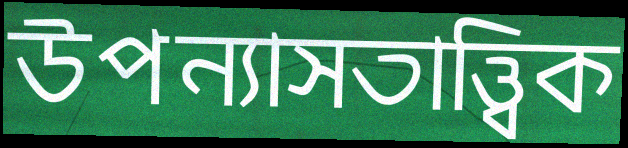
উপন্যাসতাত্ত্বিক